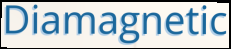
Diamagnetic